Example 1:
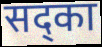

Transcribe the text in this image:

सद्का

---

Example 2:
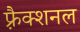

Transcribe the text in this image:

फ़्रैक्शनल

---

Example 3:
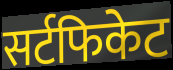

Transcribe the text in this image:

सर्टफिकेट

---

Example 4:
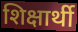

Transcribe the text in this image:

शिक्षार्थी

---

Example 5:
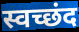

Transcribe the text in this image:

स्वच्छंद